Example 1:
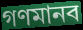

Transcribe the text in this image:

গণমানব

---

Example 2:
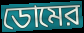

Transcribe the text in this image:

ডোমের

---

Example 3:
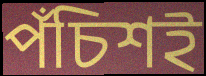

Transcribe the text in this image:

পঁচিশই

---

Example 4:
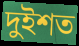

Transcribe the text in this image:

দুইশত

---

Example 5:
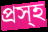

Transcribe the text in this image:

প্রস্হ